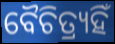
ବୈଚିତ୍ର୍ୟହିଁ